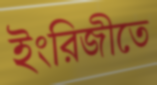
ইংরিজীতে